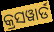
କ୍ରସୱାର୍ଡ